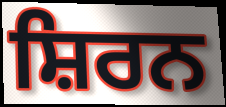
ਸ਼ਿਰਨ